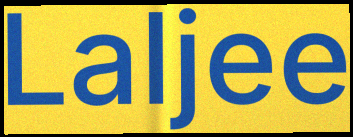
Laljee